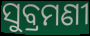
ସୁବ୍ରମଣୀ